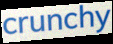
crunchy